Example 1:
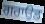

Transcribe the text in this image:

ਗਰਾਉਡ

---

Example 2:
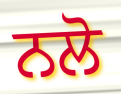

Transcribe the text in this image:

ਨਲੋ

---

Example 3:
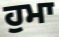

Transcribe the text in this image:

ਹੁਮਾ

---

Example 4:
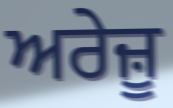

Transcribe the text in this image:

ਅਰੇਜ਼ੂ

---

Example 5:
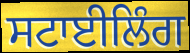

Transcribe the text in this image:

ਸਟਾਈਲਿੰਗ